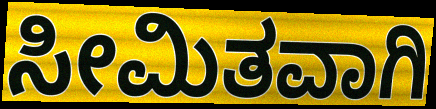
ಸೀಮಿತವಾಗಿ